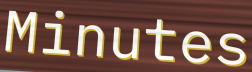
Minutes